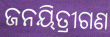
ଜନୟିତ୍ରୀଗଣ